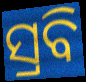
ସ୍ରବି